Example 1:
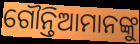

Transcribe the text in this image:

ଗୌନ୍ତିଆମାନଙ୍କୁ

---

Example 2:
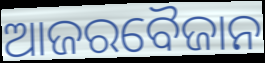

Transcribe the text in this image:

ଆଜରବୈଜାନ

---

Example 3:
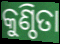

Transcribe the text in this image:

କୁଣ୍ଠିତା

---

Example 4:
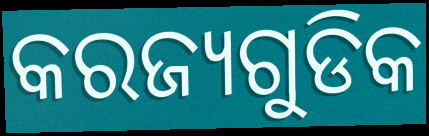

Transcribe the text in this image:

କରଜ୍ୟଗୁଡିକ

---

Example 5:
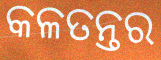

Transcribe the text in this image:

କଳତନ୍ତର